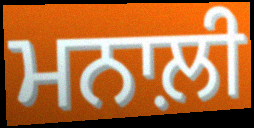
ਮਨਾਲ਼ੀ